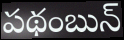
పథంబున్